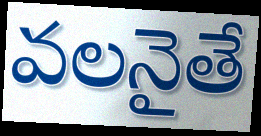
వలనైతే